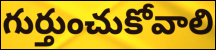
గుర్తుంచుకోవాలి